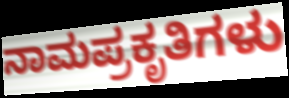
ನಾಮಪ್ರಕೃತಿಗಳು